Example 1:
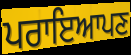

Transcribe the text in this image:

ਪਰਾਇਆਪਣ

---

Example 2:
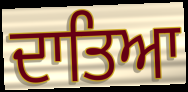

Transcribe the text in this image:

ਦਾਤਿਆ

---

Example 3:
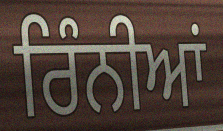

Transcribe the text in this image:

ਰਿੰਨੀਆਂ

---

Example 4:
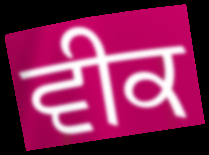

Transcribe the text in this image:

ਵੀਕ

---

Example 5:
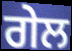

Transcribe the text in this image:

ਗੇਲ